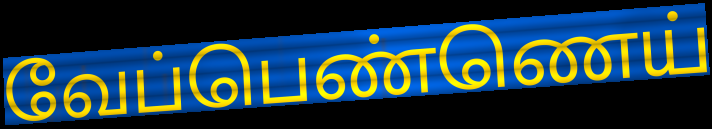
வேப்பெண்ணெய்